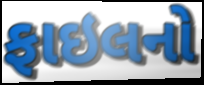
ફાઇલનો